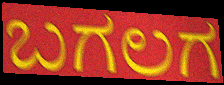
ಬಗಲಗ